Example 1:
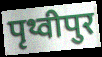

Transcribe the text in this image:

पृथ्वीपुर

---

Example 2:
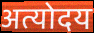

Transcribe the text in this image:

अत्योदय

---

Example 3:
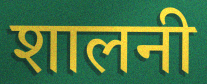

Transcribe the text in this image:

शालनी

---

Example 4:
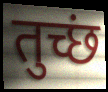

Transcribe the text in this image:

तुच्छं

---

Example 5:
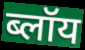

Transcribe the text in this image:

ब्लॉय